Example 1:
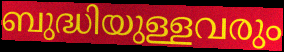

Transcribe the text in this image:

ബുദ്ധിയുള്ളവരും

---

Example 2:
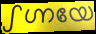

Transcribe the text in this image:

ഽഗ്നയേ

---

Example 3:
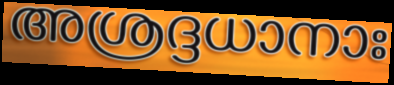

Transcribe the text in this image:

അശ്രദ്ദധാനാഃ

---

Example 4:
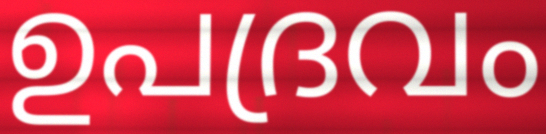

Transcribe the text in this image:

ഉപദ്രവം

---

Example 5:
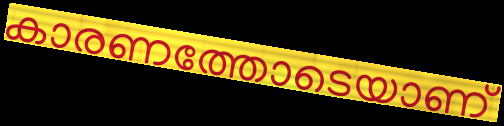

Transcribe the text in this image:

കാരണത്തോടെയാണ്